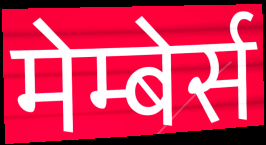
मेम्बेर्स